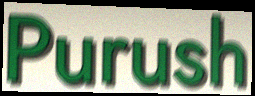
Purush